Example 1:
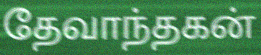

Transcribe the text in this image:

தேவாந்தகன்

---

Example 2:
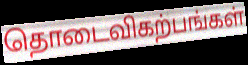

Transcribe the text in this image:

தொடைவிகற்பங்கள்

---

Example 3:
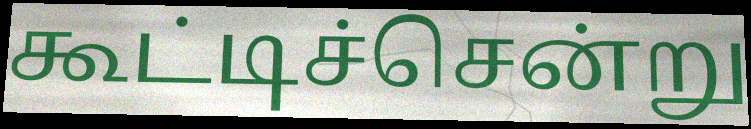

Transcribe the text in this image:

கூட்டிச்சென்று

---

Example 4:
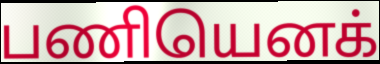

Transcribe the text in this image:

பணியெனக்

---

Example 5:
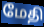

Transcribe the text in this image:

மேதி